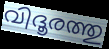
വിദൂരത്തു